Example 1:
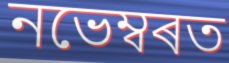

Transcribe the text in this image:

নভেম্বৰত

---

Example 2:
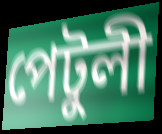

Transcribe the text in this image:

পেটুলী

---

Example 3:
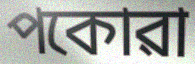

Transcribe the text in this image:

পকোৱা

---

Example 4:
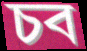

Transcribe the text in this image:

চব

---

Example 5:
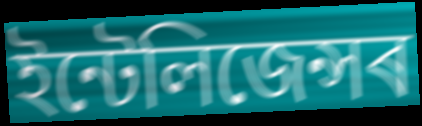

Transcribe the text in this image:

ইন্টেলিজেন্সৰ